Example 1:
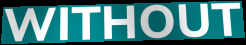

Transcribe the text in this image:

WITHOUT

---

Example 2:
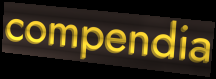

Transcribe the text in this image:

compendia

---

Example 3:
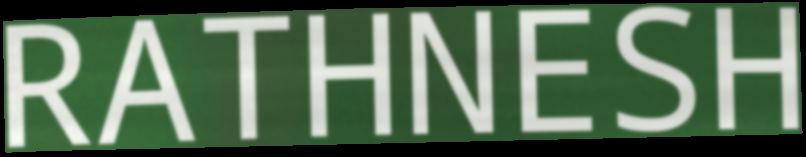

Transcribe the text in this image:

RATHNESH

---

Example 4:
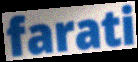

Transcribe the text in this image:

farati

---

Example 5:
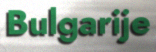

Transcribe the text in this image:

Bulgarije